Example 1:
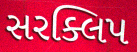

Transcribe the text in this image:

સરક્લિપ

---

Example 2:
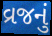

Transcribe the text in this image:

વ્રજનું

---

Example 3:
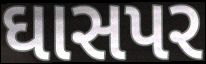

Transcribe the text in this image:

ઘાસપર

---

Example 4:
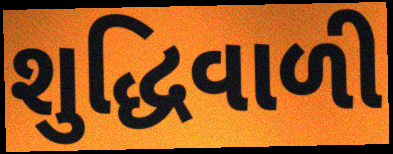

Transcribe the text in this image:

શુદ્ધિવાળી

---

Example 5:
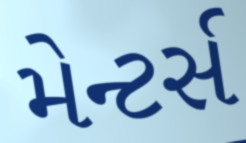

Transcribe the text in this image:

મેન્ટર્સ